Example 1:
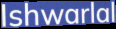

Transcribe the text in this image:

Ishwarlal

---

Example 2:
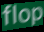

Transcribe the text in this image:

flop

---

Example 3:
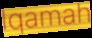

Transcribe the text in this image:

Iqamah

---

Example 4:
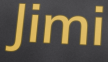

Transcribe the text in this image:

Jimi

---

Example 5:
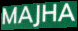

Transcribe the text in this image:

MAJHA